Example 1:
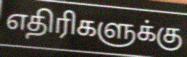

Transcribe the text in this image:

எதிரிகளுக்கு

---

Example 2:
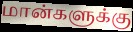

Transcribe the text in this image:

மான்களுக்கு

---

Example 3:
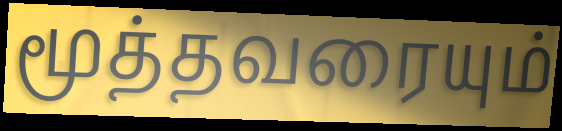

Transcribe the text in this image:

மூத்தவரையும்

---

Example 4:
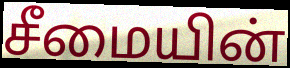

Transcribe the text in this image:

சீமையின்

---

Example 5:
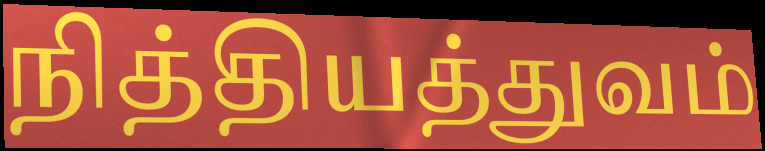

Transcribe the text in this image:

நித்தியத்துவம்